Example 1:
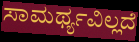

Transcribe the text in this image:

ಸಾಮರ್ಥ್ಯವಿಲ್ಲದೆ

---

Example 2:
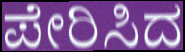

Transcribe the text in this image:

ಪೇರಿಸಿದ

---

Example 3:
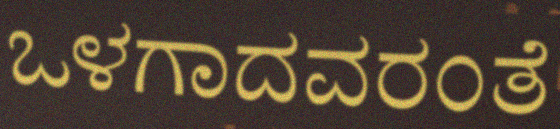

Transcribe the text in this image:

ಒಳಗಾದವರಂತೆ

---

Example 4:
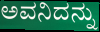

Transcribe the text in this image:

ಅವನಿದನ್ನು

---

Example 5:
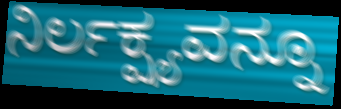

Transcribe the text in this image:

ನಿರ್ಲಕ್ಷ್ಯವನ್ನೂ